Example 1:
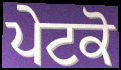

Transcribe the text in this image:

ਪੇਟਕੋ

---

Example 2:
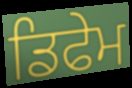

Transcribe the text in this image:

ਡਿਫੇਮ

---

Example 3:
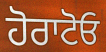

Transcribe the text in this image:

ਹੋਰਾਟੋਓ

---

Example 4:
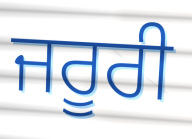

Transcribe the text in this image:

ਜਰੂਰੀ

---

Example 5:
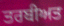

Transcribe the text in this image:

ਤਰਬੀਅਤ